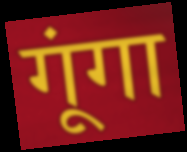
गूंगा